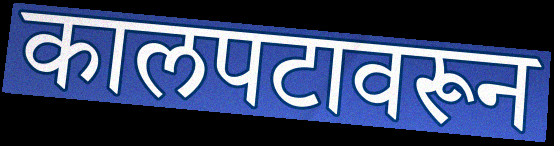
कालपटावरून